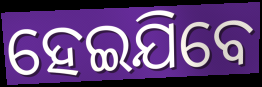
ହେଇଯିବେ